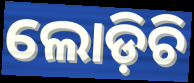
ଲୋଡ଼ିଚି